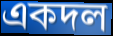
একদল